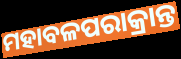
ମହାବଳପରାକ୍ରାନ୍ତ